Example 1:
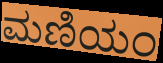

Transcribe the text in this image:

ಮಣಿಯಂ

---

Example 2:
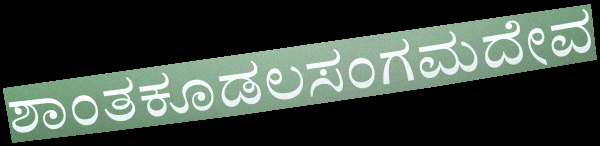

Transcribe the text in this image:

ಶಾಂತಕೂಡಲಸಂಗಮದೇವ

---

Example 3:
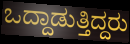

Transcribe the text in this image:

ಒದ್ದಾಡುತ್ತಿದ್ದರು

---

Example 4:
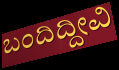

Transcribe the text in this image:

ಬಂದಿದ್ದೀವಿ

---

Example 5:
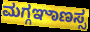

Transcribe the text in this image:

ಮಗ್ಗಞಾಣಸ್ಸ